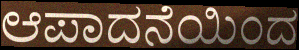
ಆಪಾದನೆಯಿಂದ